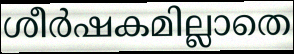
ശീർഷകമില്ലാതെ